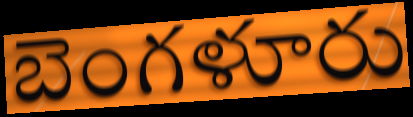
బెంగళూరు